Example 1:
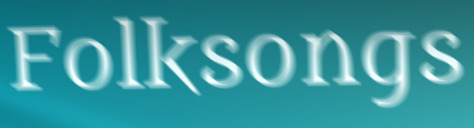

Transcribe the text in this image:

Folksongs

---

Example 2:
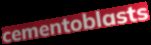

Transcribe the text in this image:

cementoblasts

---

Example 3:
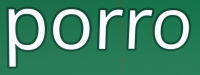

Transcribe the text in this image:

porro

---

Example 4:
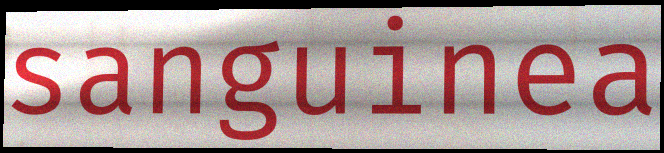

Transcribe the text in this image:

sanguinea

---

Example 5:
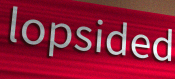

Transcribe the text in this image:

lopsided